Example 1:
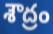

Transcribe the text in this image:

శౌద్రం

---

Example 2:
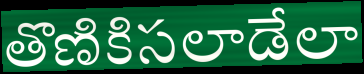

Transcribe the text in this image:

తొణికిసలాడేలా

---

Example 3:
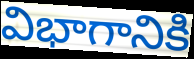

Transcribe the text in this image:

విభాగానికి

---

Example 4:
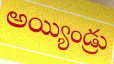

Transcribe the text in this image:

అయ్యిండ్రు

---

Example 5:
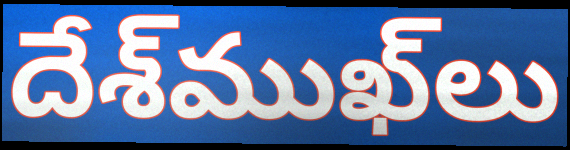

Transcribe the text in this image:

దేశ్‌ముఖ్‌లు